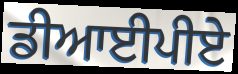
ਡੀਆਈਪੀਏ